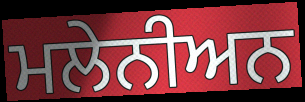
ਮਲੇਨੀਅਨ